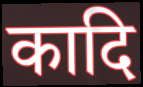
कादि